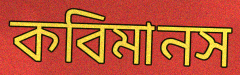
কবিমানস